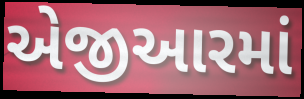
એજીઆરમાં